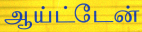
ஆய்ட்டேன்